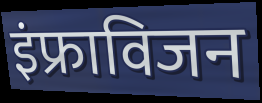
इंफ्राविजन